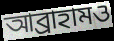
আব্রাহামও